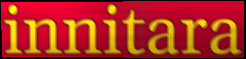
innitara